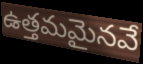
ఉత్తమమైనవే